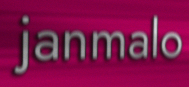
janmalo